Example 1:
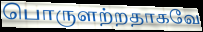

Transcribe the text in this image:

பொருளற்றதாகவே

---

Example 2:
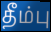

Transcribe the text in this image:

தீம்பு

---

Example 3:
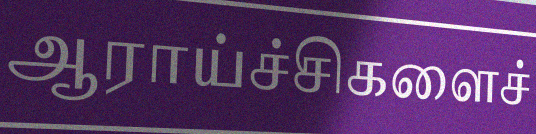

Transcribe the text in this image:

ஆராய்ச்சிகளைச்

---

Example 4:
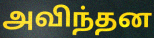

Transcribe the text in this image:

அவிந்தன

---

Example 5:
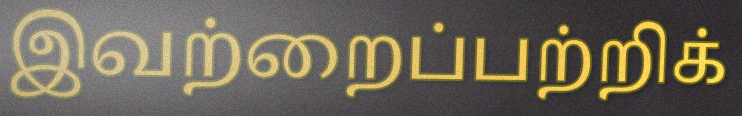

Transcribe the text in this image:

இவற்றைப்பற்றிக்